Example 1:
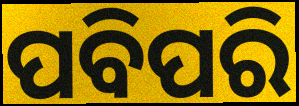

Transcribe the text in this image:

ପବିପରି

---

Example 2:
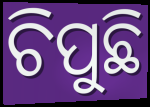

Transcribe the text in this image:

ଚିପୁଛି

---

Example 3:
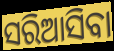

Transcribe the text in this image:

ସରିଆସିବା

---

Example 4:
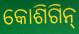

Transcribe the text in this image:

କୋଶିଗିନ୍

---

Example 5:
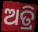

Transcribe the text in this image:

ଅତ୍ରି